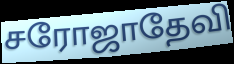
சரோஜாதேவி